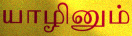
யாழினும்